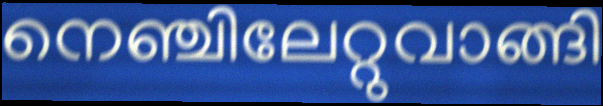
നെഞ്ചിലേറ്റുവാങ്ങി